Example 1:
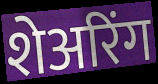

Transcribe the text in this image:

शेअरिंग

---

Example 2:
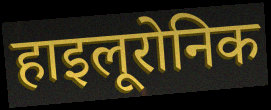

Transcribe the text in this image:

हाइलूरोनिक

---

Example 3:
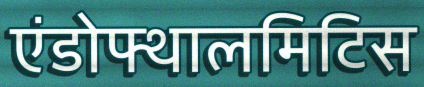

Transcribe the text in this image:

एंडोफ्थालमिटिस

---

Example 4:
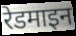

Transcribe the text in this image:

रेडमाइन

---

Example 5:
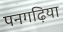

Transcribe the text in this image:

पनगढ़िया